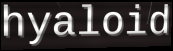
hyaloid